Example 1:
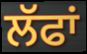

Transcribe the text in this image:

ਲੱਫਾਂ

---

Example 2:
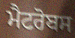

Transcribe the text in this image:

ਮੈਟਰੋਬਸ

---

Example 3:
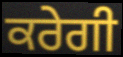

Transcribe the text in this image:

ਕਰੇਗੀ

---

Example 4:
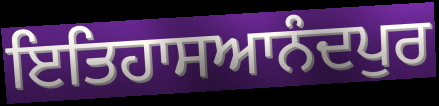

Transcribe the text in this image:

ਇਤਿਹਾਸਆਨੰਦਪੁਰ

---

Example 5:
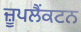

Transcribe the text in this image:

ਜ਼ੂਪਲੈਂਕਟਨ